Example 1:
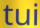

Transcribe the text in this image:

tui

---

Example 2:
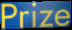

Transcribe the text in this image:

Prize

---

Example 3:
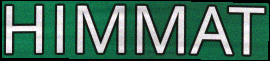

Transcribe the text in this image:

HIMMAT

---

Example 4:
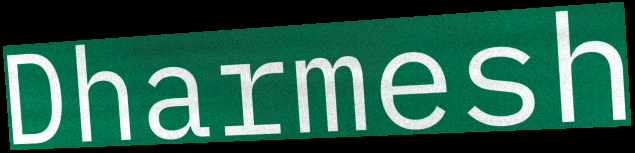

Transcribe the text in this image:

Dharmesh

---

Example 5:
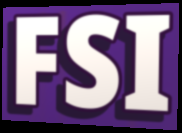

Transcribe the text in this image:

FSI